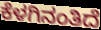
ಕೆಳಗಿನಂತಿದೆ